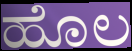
ಹೊಲ